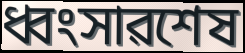
ধ্বংসাৱশেষ